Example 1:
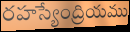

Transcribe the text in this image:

రహస్యేంద్రియము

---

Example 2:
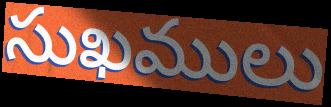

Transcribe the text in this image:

సుఖములు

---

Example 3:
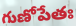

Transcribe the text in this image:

గుణోపేతః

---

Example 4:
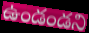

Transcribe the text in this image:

ఉండండని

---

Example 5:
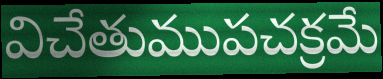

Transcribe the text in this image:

విచేతుముపచక్రమే